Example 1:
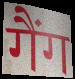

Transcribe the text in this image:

गैंग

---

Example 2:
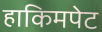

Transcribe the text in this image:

हाकिमपेट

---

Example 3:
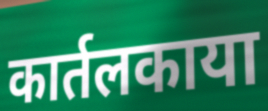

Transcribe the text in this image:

कार्तलकाया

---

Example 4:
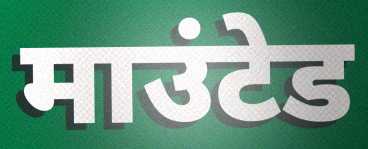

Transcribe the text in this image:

माउंटेड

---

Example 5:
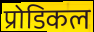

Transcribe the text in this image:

प्रोडिकल